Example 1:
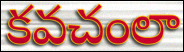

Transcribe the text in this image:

కవచంలా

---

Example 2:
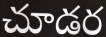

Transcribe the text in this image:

చూడర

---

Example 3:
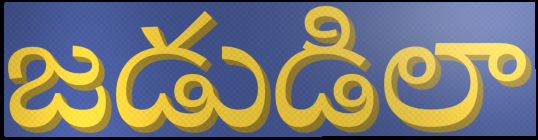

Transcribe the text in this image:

జడుడిలా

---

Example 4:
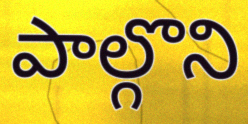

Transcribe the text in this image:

పాల్గొని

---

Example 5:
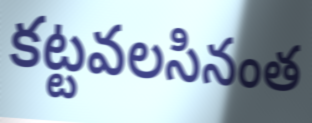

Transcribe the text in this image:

కట్టవలసినంత